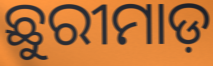
ଛୁରୀମାଡ଼